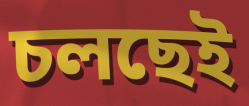
চলছেই